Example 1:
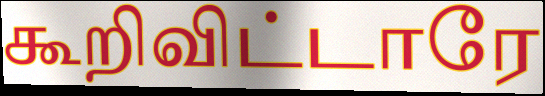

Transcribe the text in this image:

கூறிவிட்டாரே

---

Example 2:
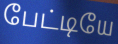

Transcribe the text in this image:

பேட்டியே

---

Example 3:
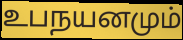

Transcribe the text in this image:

உபநயனமும்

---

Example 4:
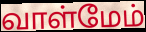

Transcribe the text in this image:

வாள்மேம்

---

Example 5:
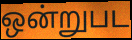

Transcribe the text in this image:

ஒன்றுபட